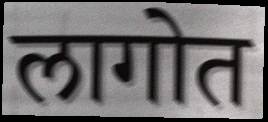
लागोत